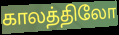
காலத்திலோ